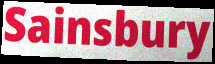
Sainsbury